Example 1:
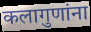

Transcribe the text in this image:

कलागुणांना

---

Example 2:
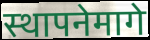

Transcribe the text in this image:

स्थापनेमागे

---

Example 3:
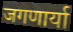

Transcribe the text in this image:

जगणार्या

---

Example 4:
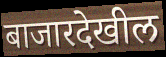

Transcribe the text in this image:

बाजारदेखील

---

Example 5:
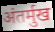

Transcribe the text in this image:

अंतर्मुख